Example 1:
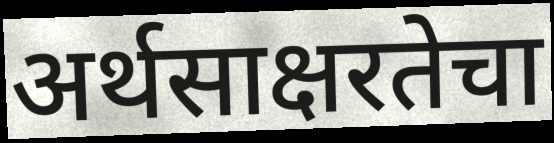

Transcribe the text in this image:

अर्थसाक्षरतेचा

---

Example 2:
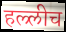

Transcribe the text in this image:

हल्लीच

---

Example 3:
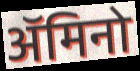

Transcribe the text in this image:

ॲमिनो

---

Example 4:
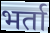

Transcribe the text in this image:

भर्ता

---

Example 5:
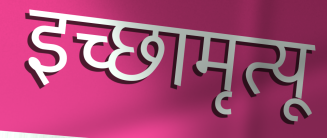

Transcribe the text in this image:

इच्छामृत्यू